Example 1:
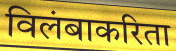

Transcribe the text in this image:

विलंबाकरिता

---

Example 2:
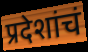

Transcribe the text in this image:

प्रदेशांचं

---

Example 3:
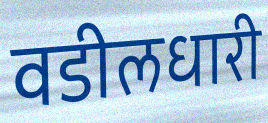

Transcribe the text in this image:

वडीलधारी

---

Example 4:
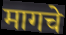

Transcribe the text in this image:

मागचे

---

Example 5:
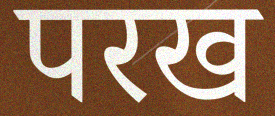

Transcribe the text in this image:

परख